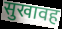
सुखावह